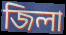
জিলা